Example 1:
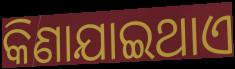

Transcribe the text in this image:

କିଣାଯାଇଥାଏ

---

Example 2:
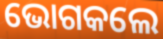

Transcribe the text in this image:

ଭୋଗକଲେ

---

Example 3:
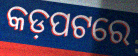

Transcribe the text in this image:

କଡ଼ପଟରେ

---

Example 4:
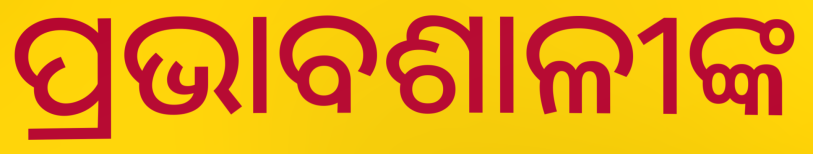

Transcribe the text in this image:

ପ୍ରଭାବଶାଳୀଙ୍କ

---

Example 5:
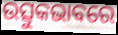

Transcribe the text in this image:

ଉତ୍ସୁକଭାବରେ